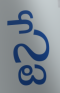
స్టే